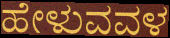
ಹೇಳುವವಳ